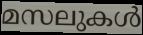
മസലുകൾ